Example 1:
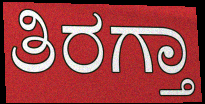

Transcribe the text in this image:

ತಿರಗ್ತಾ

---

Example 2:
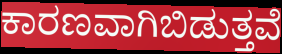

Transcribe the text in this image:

ಕಾರಣವಾಗಿಬಿಡುತ್ತವೆ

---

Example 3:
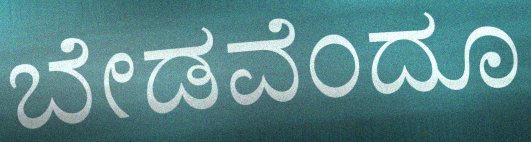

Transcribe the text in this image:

ಬೇಡವೆಂದೂ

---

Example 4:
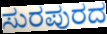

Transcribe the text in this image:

ಸುರಪುರದ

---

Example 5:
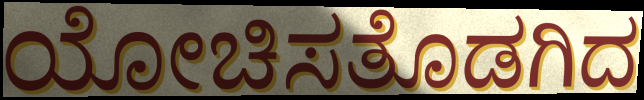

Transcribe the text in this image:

ಯೋಚಿಸತೊಡಗಿದ